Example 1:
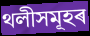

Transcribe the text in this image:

থলীসমূহৰ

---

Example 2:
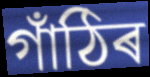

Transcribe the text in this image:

গাঁঠিৰ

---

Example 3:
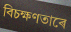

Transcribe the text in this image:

বিচক্ষণতাৰে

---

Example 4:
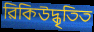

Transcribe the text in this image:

ৱিকিউদ্ধৃতিত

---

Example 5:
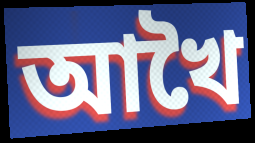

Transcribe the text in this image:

আখৈ